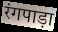
रंगपाड़ा